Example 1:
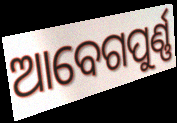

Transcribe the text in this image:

ଆବେଗପୁର୍ଣ୍ଣ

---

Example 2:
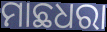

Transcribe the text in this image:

ମାଛଧରା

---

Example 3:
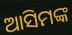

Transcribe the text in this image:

ଆସିମଙ୍କ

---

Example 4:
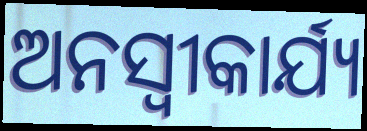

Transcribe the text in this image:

ଅନସ୍ୱୀକାର୍ଯ୍ୟ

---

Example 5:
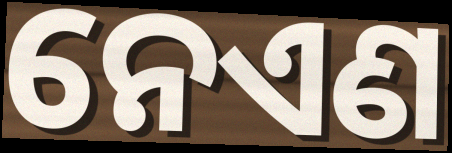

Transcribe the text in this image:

ନେଏଣ